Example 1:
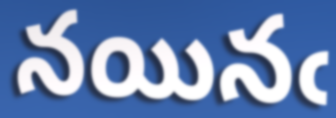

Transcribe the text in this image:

నయినఁ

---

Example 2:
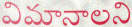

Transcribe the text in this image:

విమానాలని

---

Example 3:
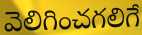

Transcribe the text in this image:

వెలిగించగలిగే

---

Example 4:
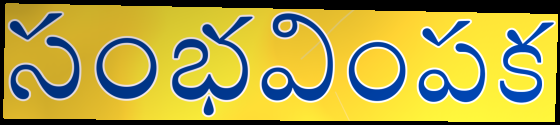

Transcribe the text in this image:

సంభవింపక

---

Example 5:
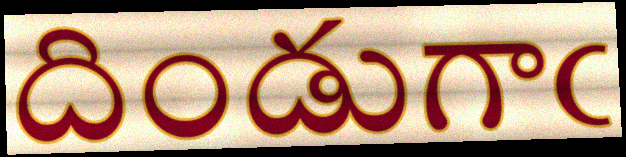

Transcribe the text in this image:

దిండుగాఁ